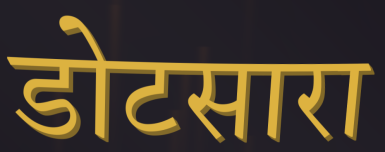
डोटसारा